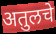
अतुलचे